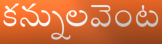
కన్నులవెంట